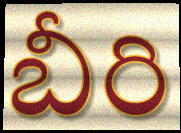
బీరి